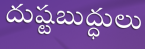
దుష్టబుద్ధులు